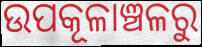
ଉପକୂଳାଞ୍ଚଳରୁ